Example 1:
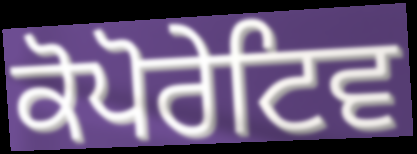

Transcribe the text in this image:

ਕੋਪੋਰੇਟਿਵ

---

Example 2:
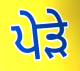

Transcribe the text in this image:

ਪੇੜੇ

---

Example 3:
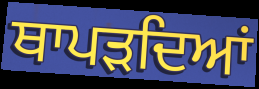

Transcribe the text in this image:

ਥਾਪੜਦਿਆਂ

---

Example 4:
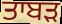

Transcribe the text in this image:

ਤਾਬੜ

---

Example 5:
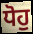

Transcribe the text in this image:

ਧੋਹੁ